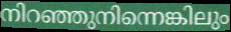
നിറഞ്ഞുനിന്നെങ്കിലും